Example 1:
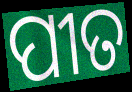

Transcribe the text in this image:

ପୀତ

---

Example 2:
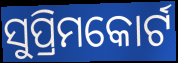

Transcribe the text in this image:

ସୁପ୍ରିମକୋର୍ଟ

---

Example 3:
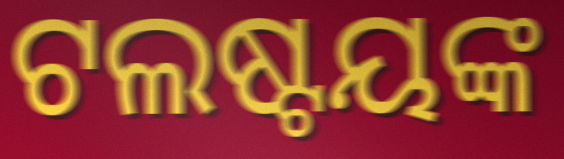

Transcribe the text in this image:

ଟଲଷ୍ଟୟଙ୍କ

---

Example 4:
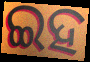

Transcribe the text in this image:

ଇହ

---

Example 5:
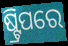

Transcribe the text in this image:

ଷ୍ଟ୍ରିପରେ